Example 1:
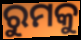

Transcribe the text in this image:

ରୁମକୁ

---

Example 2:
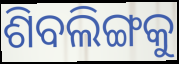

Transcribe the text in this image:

ଶିବଲିଙ୍ଗକୁ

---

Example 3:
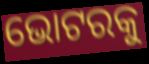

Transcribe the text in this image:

ଭୋଟରକୁ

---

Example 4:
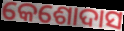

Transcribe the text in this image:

କେଶୋଦାସ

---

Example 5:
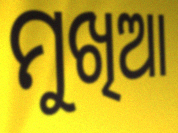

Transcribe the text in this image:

ମୁଖିଆ